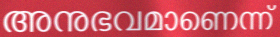
അനുഭവമാണെന്ന്